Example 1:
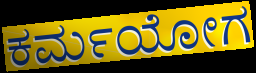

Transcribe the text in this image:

ಕರ್ಮಯೋಗ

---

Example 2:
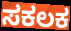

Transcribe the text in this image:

ಸಕಲಕ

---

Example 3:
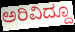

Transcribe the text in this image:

ಅರಿವಿದ್ದೂ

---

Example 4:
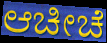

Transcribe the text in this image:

ಆಚೀಚೆ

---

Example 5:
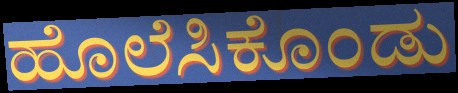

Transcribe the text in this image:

ಹೊಲೆಸಿಕೊಂಡು